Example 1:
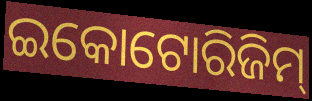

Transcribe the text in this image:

ଇକୋଟୋରିଜିମ୍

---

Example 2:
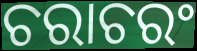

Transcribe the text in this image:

ଚରାଚରଂ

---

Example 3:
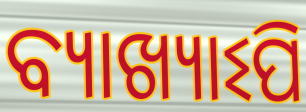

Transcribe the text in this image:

ବ୍ୟାଖ୍ୟାଽପି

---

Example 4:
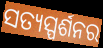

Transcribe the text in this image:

ସତ୍ୟସ୍ପର୍ଶନର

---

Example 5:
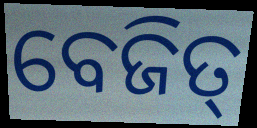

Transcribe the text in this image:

ବେଜିତ୍